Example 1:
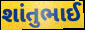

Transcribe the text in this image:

શાંતુભાઈ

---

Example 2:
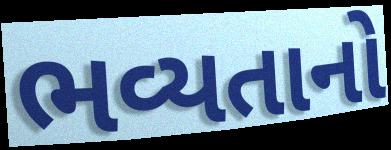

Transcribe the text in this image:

ભવ્યતાનો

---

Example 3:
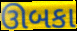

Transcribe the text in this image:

ઊબકા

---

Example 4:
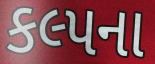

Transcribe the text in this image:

કલ્પના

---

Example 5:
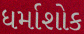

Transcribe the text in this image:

ધર્માશોક